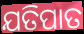
ଯତିପାତ